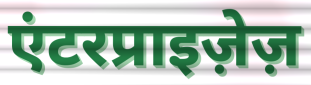
एंटरप्राइज़ेज़